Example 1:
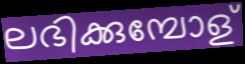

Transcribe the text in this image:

ലഭിക്കുമ്പോള്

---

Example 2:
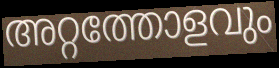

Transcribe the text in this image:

അറ്റത്തോളവും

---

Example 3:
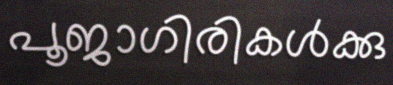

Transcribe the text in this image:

പൂജാഗിരികൾക്കു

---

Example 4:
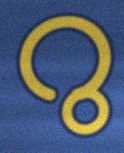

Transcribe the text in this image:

റു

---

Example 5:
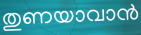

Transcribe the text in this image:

തുണയാവാൻ